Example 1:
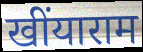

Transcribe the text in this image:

खींयाराम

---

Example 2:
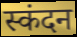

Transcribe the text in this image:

स्कंदन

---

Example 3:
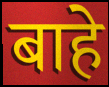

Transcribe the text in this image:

बाहे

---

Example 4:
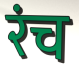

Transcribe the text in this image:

रंच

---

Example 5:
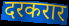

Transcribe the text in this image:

दरकरार